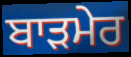
ਬਾੜਮੇਰ